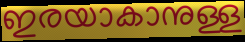
ഇരയാകാനുള്ള